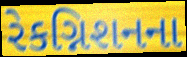
રેકગ્નિશનના